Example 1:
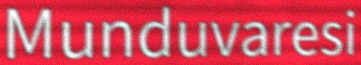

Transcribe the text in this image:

Munduvaresi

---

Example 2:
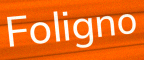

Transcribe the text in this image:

Foligno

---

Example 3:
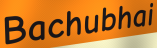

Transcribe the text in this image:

Bachubhai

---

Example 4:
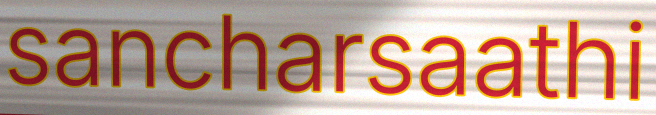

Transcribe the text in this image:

sancharsaathi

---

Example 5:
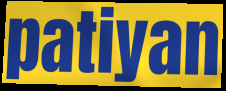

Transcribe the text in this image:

patiyan